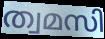
ത്വമസി